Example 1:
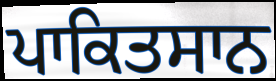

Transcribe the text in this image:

ਪਾਕਿਤਸਾਨ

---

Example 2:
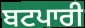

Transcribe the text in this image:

ਬਟਪਾਰੀ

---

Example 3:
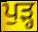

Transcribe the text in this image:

ਪੁੜ੍ਹ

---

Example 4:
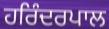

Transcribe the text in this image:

ਹਰਿੰਦਰਪਾਲ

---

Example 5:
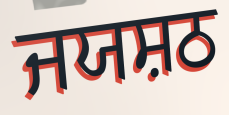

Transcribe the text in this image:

ਜਯਸ਼ਠ